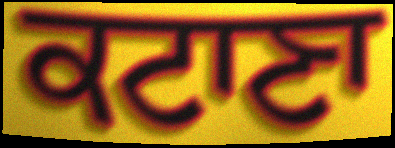
ਕਟਾਣਾ